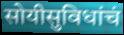
सोयीसुविधांचं